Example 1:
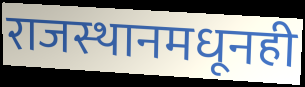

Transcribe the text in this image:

राजस्थानमधूनही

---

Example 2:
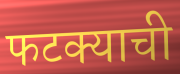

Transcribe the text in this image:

फटक्याची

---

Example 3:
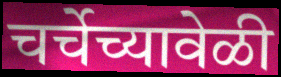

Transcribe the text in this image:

चर्चेच्यावेळी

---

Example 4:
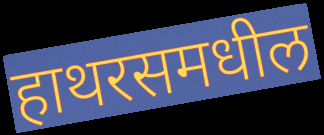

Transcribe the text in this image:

हाथरसमधील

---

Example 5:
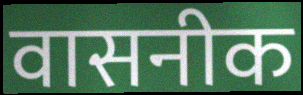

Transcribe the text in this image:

वासनीक